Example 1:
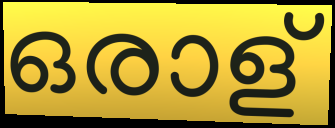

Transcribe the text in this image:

ഒരാള്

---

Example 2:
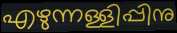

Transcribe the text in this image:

എഴുന്നള്ളിപ്പിനു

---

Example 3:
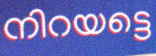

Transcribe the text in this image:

നിറയട്ടെ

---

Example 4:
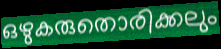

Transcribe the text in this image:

ഒഴുകരുതൊരിക്കലും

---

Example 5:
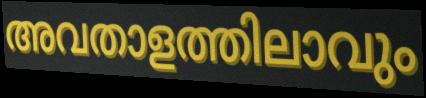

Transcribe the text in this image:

അവതാളത്തിലാവും